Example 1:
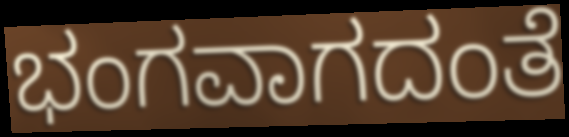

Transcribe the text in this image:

ಭಂಗವಾಗದಂತೆ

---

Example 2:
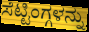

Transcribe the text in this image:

ಸೆಟ್ಟಿಂಗ್ಗಳನ್ನು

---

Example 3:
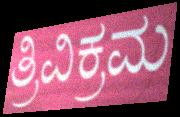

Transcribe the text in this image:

ತ್ರಿವಿಕ್ರಮ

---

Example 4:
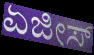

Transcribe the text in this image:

ಏಜೀಸ್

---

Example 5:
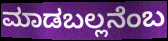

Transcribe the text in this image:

ಮಾಡಬಲ್ಲನೆಂಬ